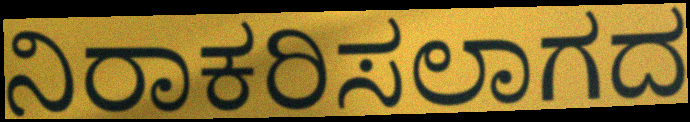
ನಿರಾಕರಿಸಲಾಗದ